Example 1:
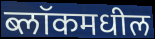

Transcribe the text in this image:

ब्लॉकमधील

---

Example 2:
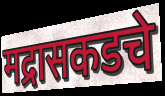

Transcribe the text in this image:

मद्रासकडचे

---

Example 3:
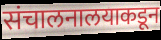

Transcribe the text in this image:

संचालनालयाकडून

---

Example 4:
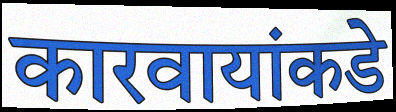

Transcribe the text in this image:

कारवायांकडे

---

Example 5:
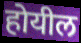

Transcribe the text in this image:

होयील